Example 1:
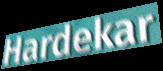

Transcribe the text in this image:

Hardekar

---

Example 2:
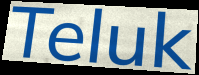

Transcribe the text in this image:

Teluk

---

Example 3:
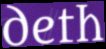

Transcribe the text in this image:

deth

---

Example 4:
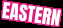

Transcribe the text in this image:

EASTERN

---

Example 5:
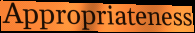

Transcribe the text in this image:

Appropriateness